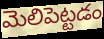
మెలిపెట్టడం